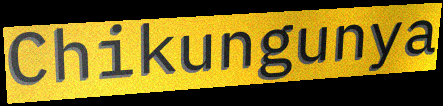
Chikungunya